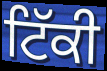
ਟਿੱਕੀ